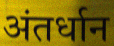
अंतर्धान